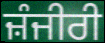
ਜ਼ੰਜੀਰੀ